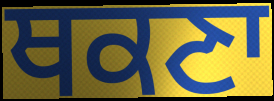
ਥਕਣਾ